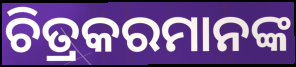
ଚିତ୍ରକରମାନଙ୍କ